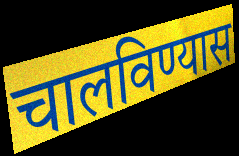
चालविण्यास